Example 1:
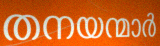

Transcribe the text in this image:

തനയന്മാർ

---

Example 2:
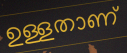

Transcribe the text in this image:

ഉള്ളതാണ്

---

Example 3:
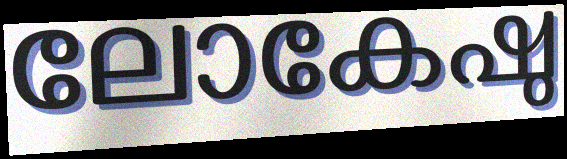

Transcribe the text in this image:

ലോകേഷു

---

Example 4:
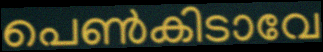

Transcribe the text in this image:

പെൺകിടാവേ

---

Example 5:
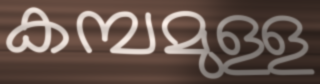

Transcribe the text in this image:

കമ്പമുള്ള